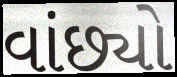
વાંછ્યો